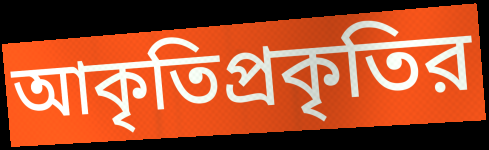
আকৃতিপ্রকৃতির